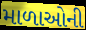
માળાઓની